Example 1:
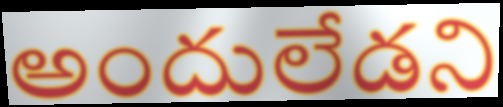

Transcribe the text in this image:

అందులేడని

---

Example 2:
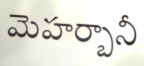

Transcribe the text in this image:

మెహర్బానీ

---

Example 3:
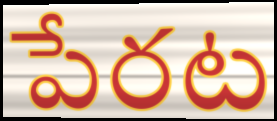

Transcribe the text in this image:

పేరట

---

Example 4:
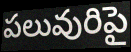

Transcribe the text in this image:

పలువురిపై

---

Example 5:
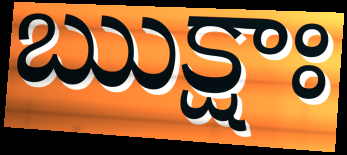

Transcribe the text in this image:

ఋక్షాః